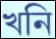
খনি